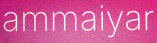
ammaiyar